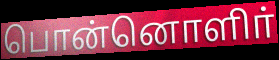
பொன்னொளிர்